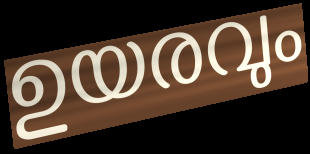
ഉയരവും